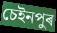
চেইনপুৰ